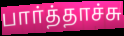
பார்த்தாச்சு